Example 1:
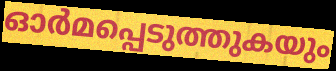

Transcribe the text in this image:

ഓർമപ്പെടുത്തുകയും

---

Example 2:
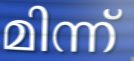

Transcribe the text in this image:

മിന്ന്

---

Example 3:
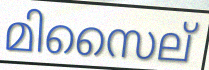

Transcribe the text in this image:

മിസൈല്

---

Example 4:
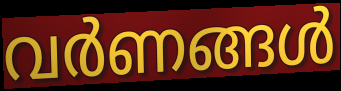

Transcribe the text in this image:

വർണങ്ങൾ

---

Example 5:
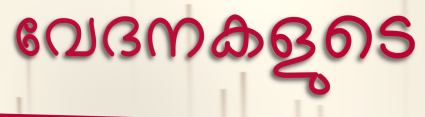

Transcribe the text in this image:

വേദനകളുടെ